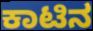
ಕಾಟಿನ